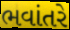
ભવાંતરે